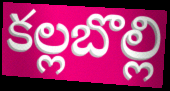
కల్లబొల్లి